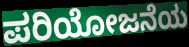
ಪರಿಯೋಜನೆಯ